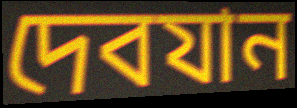
দেবযান